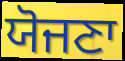
ਯੋਜਣਾ